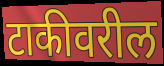
टाकीवरील